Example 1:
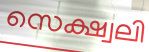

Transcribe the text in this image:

സെക്ഷ്വലി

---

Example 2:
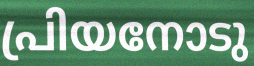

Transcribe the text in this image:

പ്രിയനോടു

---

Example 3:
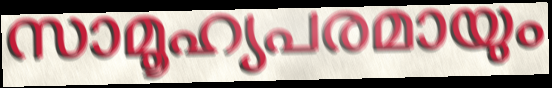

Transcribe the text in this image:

സാമൂഹ്യപരമായും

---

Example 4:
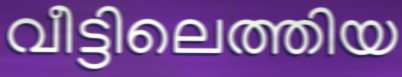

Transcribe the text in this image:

വീട്ടിലെത്തിയ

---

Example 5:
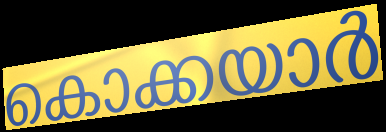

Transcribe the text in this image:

കൊക്കയാർ